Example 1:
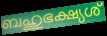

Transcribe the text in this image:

ബഹുഭക്ഷ്യശ്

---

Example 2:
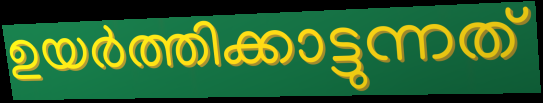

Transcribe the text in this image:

ഉയർത്തിക്കാട്ടുന്നത്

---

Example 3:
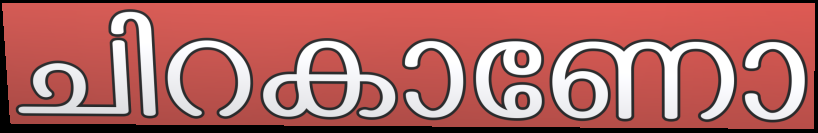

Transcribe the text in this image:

ചിറകാണോ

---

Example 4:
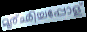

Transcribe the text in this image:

മൂര്ഛിച്ചപ്പോള്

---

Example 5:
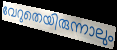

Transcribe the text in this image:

വേറുതെയിരുന്നാലും